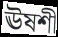
ঊষশী